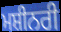
ਮਸ਼ੀਨਰੀ